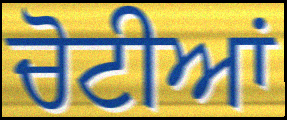
ਚੋਟੀਆਂ